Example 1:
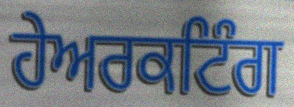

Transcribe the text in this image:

ਹੇਅਰਕਟਿੰਗ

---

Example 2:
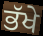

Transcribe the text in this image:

ਭੱਖੇ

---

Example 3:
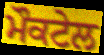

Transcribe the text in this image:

ਮੌਕਟੇਲ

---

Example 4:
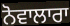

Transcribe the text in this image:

ਨੋਵਾਲਾਰਾ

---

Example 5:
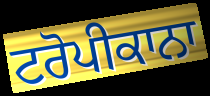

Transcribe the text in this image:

ਟਰੋਪੀਕਾਨਾ